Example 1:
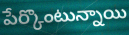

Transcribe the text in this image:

పేర్కొంటున్నాయి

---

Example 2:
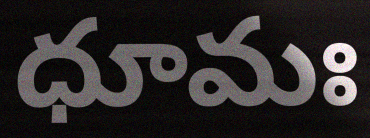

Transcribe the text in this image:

ధూమః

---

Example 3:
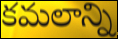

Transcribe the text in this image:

కమలాన్ని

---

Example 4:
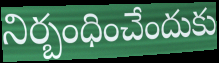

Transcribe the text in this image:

నిర్బంధించేందుకు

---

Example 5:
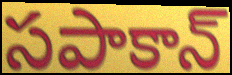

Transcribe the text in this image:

సపాకాన్